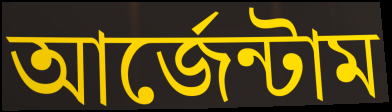
আর্জেন্টাম